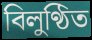
বিলুণ্ঠিত